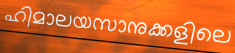
ഹിമാലയസാനുക്കളിലെ